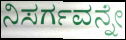
ನಿಸರ್ಗವನ್ನೇ